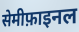
सेमीफ़ाइनल